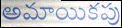
అమాయికపు